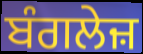
ਬੰਗਲੇਜ਼